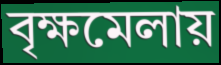
বৃক্ষমেলায়